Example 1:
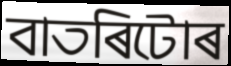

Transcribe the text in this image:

বাতৰিটোৰ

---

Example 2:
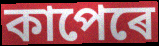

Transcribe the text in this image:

কাপেৰে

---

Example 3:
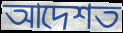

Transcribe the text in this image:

আদেশত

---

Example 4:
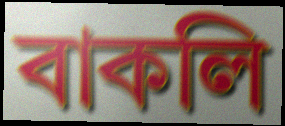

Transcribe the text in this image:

বাকলি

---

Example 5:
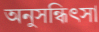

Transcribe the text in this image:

অনুসন্ধিৎসা